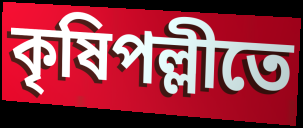
কৃষিপল্লীতে